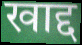
खाद्द